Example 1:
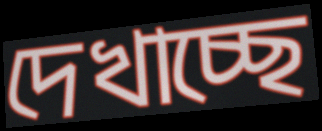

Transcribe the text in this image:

দেখাচ্ছে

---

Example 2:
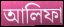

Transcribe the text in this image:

আলিফা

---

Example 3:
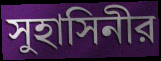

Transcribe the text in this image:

সুহাসিনীর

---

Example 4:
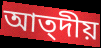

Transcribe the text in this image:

আত্দীয়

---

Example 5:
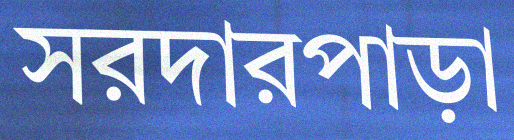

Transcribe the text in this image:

সরদারপাড়া